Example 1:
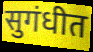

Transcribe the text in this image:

सुगंधीत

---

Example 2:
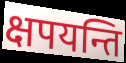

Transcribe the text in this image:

क्षपयन्ति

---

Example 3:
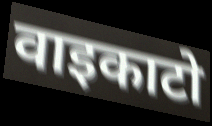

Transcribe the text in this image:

वाइकाटो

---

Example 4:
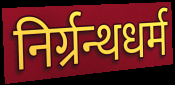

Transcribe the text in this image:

निर्ग्रन्थधर्म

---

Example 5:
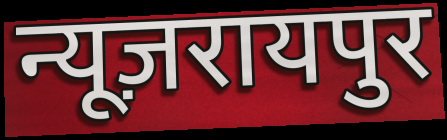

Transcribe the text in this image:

न्यूज़रायपुर